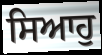
ਸਿਆਹੁ